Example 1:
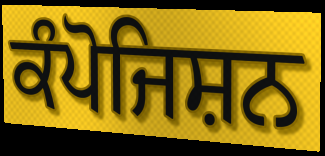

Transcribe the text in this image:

ਕੰਪੋਜਿਸ਼ਨ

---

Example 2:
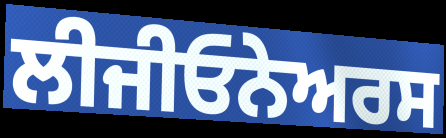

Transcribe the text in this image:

ਲੀਜੀਓਨੇਅਰਸ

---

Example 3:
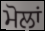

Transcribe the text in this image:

ਮੋਲਾਂ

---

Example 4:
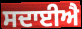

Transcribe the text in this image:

ਸਦਾਈਐ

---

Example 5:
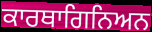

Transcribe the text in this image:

ਕਾਰਥਾਗਿਨਿਅਨ